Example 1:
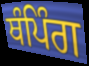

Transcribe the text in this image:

ਥੰਪਿੰਗ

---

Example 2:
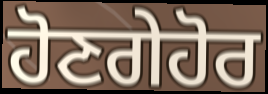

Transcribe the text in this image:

ਹੋਣਗੇਹੋਰ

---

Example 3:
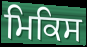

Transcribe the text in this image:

ਮਿਕਿਸ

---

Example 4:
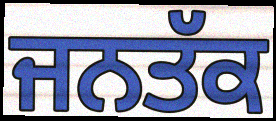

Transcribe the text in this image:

ਜਨਤੱਕ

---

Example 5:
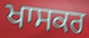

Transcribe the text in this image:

ਖਾਸਕਰ